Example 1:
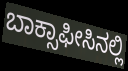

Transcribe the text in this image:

ಬಾಕ್ಸಾಫೀಸಿನಲ್ಲಿ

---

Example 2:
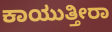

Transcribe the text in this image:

ಕಾಯುತ್ತೀರಾ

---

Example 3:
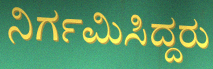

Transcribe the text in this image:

ನಿರ್ಗಮಿಸಿದ್ದರು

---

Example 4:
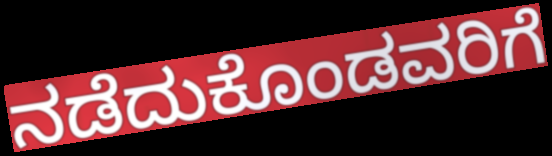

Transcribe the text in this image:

ನಡೆದುಕೊಂಡವರಿಗೆ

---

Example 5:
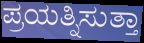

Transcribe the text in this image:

ಪ್ರಯತ್ನಿಸುತ್ತಾ